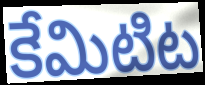
కేమిటిట